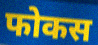
फोकस